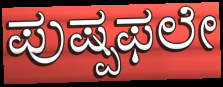
ಪುಷ್ಪಫಲೇ